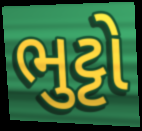
ભુટ્ટો